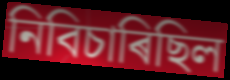
নিবিচাৰিছিল